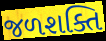
જળશક્તિ